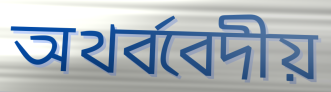
অথর্ববেদীয়